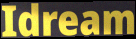
Idream